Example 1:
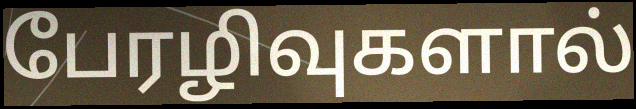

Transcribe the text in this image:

பேரழிவுகளால்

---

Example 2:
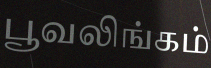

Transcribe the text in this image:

பூவலிங்கம்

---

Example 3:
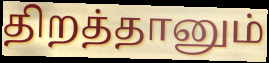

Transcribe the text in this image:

திறத்தானும்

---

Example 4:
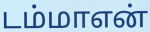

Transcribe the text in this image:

டம்மாஎன்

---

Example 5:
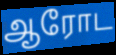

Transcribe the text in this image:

ஆரோட